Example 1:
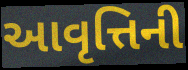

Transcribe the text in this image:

આવૃત્તિની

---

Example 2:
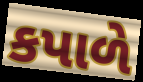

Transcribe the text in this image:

કપાળે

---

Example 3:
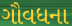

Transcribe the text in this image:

ગૌવધના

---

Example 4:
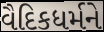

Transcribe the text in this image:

વૈદિકધર્મને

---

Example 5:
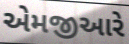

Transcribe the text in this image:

એમજીઆરે